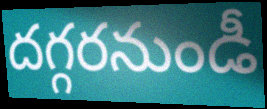
దగ్గరనుండీ